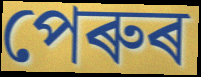
পেৰুৰ